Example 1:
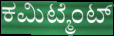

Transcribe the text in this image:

ಕಮಿಟ್ಮೆಂಟ್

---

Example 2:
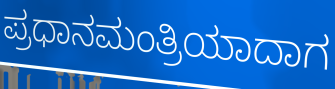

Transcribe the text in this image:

ಪ್ರಧಾನಮಂತ್ರಿಯಾದಾಗ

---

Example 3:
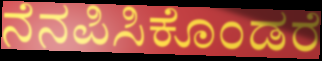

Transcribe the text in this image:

ನೆನಪಿಸಿಕೊಂಡರೆ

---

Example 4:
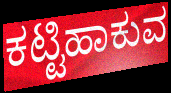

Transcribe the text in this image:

ಕಟ್ಟಿಹಾಕುವ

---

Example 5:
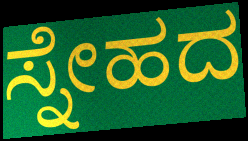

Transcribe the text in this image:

ಸ್ನೇಹದ